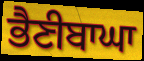
ਭੈਣੀਬਾਘਾ